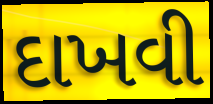
દાખવી